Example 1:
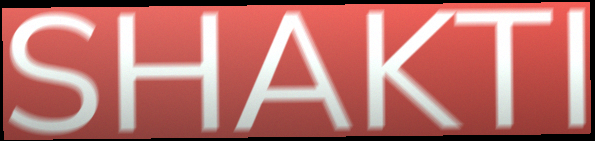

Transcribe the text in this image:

SHAKTI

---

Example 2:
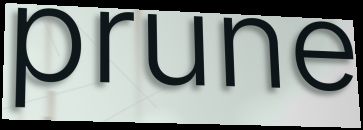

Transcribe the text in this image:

prune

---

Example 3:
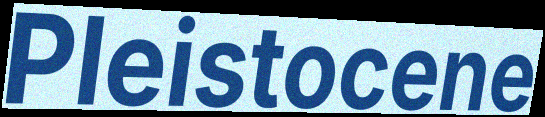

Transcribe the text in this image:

Pleistocene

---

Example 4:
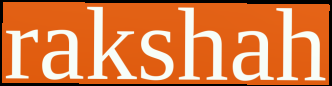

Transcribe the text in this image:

rakshah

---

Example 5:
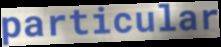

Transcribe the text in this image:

particular